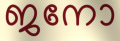
ജനോ